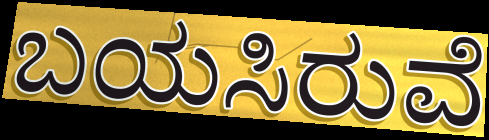
ಬಯಸಿರುವೆ